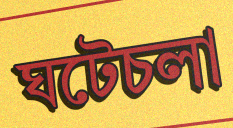
ঘটেচলা